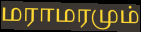
மராமரமும்